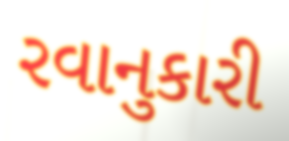
રવાનુકારી